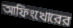
আফিংখোরের